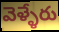
వెళ్ళేరు